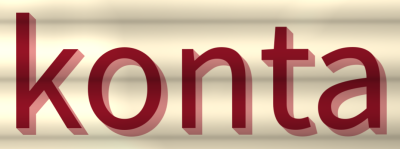
konta